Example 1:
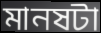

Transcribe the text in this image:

মানষটা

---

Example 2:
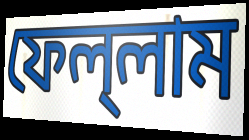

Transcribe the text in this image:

ফেল্‌লাম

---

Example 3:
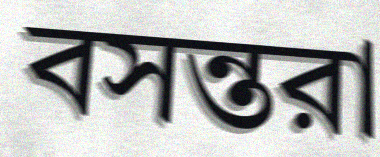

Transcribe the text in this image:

বসন্তরা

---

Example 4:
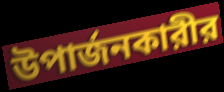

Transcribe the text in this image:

উপার্জনকারীর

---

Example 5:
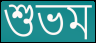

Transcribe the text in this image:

শুভম